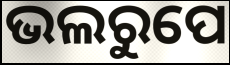
ଭଲରୁପେ